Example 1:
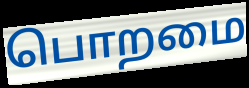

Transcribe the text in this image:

பொறமை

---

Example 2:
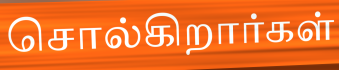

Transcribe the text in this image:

சொல்கிறார்கள்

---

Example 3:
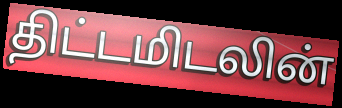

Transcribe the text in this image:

திட்டமிடலின்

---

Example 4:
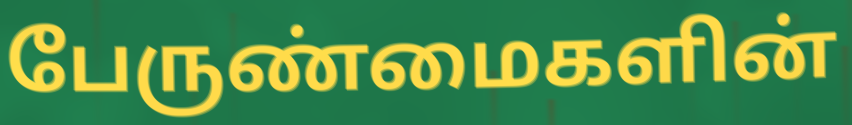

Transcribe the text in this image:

பேருண்மைகளின்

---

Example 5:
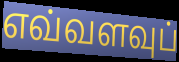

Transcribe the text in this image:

எவ்வளவுப்